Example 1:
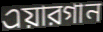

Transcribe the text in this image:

এয়ারগান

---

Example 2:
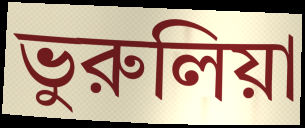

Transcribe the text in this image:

ভুরুলিয়া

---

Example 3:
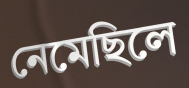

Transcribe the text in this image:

নেমেছিলে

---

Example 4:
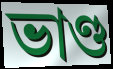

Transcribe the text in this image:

ভাণ্ড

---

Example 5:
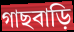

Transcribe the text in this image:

গাছবাড়ি